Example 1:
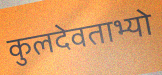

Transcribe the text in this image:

कुलदेवताभ्यो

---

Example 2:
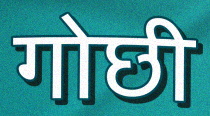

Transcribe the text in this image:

गोछी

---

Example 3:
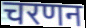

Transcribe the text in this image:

चरणन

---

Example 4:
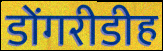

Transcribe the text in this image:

डोंगरीडीह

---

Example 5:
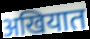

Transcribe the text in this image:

अखियात